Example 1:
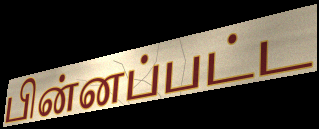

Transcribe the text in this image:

பின்னப்பட்ட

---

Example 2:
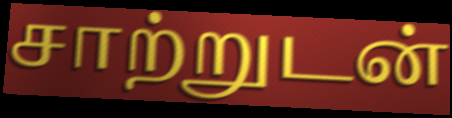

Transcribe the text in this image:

சாற்றுடன்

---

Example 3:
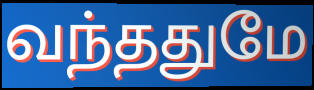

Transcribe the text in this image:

வந்ததுமே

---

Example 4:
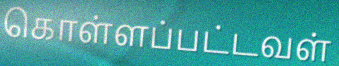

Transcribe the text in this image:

கொள்ளப்பட்டவள்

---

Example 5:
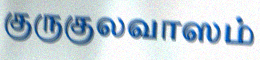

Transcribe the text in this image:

குருகுலவாஸம்